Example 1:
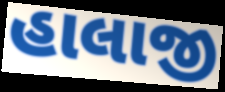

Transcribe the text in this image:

હાલાજી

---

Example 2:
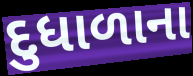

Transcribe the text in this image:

દુધાળાના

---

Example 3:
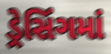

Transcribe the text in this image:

ડ્રેસિંગમાં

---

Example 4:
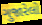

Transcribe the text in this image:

ગુજારેલો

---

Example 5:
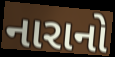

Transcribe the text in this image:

નારાનો